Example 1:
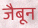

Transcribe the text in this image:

जैबून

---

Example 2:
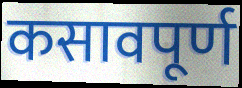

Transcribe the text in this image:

कसावपूर्ण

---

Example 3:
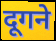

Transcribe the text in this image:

दूगने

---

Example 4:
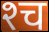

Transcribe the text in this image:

श्च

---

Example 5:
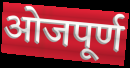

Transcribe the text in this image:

ओजपूर्ण